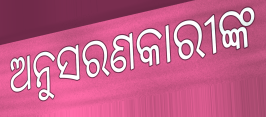
ଅନୁସରଣକାରୀଙ୍କ